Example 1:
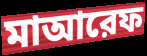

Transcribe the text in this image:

মাআরেফ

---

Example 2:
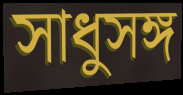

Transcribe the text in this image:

সাধুসঙ্গ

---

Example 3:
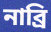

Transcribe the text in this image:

নাব্রি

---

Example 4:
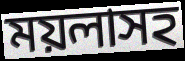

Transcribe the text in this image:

ময়লাসহ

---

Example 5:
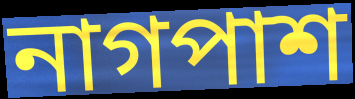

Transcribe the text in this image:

নাগপাশ